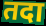
तदा